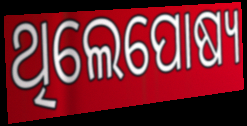
ଥିଲେପୋଷ୍ୟ